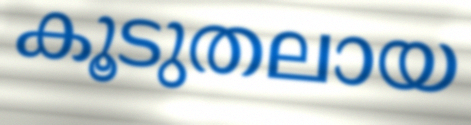
കൂടുതലായ